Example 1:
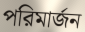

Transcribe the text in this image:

পরিমার্জন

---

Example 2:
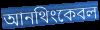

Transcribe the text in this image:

আনথিংকেবল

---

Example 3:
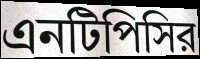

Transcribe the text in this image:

এনটিপিসির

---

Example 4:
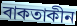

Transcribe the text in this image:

বাকতাকীন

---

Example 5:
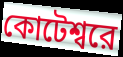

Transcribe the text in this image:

কোটেশ্বরে